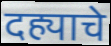
दह्याचे